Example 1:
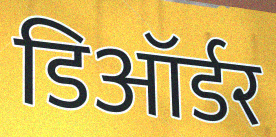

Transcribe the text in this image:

डिऑर्डर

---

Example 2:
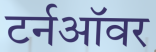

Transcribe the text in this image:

टर्नऑवर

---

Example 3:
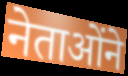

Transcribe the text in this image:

नेताओंने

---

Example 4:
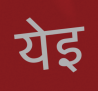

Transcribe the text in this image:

येइ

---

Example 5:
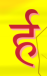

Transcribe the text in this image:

र्ह